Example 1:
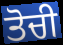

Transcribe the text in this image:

ਤੋਚੀ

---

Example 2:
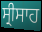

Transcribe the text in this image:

ਸ੍ਰੀਸਾਹ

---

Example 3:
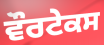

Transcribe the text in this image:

ਵੌਰਟੇਕਸ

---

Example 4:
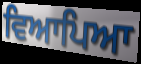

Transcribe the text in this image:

ਵਿਆਪਿਆ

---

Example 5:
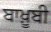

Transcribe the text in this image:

ਬਾਖ਼ੂਬੀ